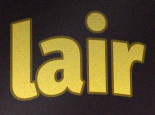
lair